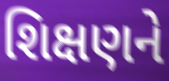
શિક્ષણને